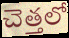
చెత్తలో